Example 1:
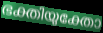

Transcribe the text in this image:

ഭക്തിയുക്തോ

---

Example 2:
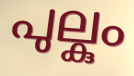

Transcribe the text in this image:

പുല്കും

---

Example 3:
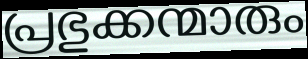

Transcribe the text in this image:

പ്രഭുക്കന്മാരും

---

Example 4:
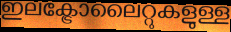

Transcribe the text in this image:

ഇലക്ട്രോലൈറ്റുകളുള്ള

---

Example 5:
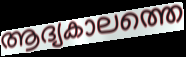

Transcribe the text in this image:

ആദ്യകാലത്തെ